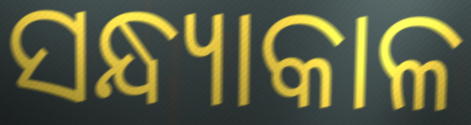
ସନ୍ଧ୍ୟାକାଳ